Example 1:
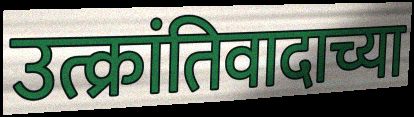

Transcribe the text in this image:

उत्क्रांतिवादाच्या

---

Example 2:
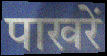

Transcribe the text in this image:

पाखरें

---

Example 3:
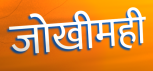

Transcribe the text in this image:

जोखीमही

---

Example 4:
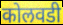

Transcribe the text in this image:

कोलवडी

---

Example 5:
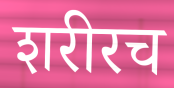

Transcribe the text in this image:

शरीरच